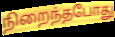
நிறைந்தபோது